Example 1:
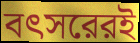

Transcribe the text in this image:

বৎসরেরই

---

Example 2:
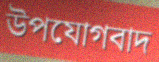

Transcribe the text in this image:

উপযোগবাদ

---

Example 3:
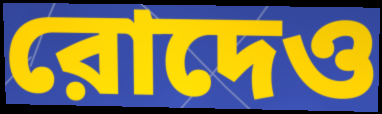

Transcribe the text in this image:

রোদেও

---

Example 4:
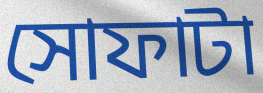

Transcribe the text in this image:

সোফাটা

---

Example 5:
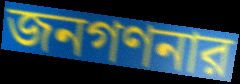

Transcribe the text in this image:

জনগণনার